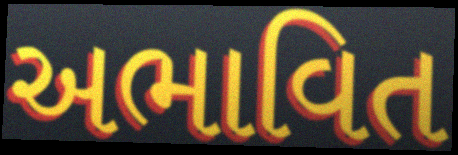
અભાવિત